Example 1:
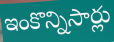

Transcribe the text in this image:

ఇంకొన్నిసార్లు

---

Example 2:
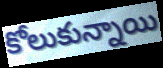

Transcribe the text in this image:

కోలుకున్నాయి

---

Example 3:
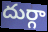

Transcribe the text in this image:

దుర్గా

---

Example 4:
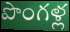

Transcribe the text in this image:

పొంగళ్ల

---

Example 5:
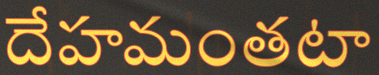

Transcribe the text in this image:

దేహమంతటా